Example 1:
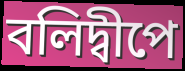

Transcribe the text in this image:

বলিদ্বীপে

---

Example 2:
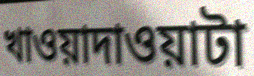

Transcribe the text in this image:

খাওয়াদাওয়াটা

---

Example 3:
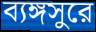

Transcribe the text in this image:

ব্যঙ্গসুরে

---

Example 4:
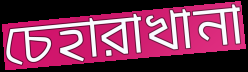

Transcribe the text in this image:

চেহারাখানা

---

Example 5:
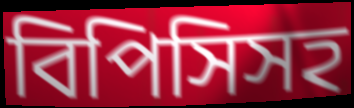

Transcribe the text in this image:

বিপিসিসহ